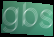
gbs